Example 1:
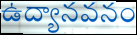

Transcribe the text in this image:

ఉద్యానవనం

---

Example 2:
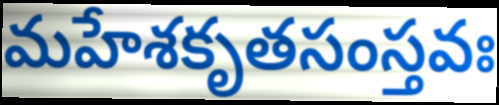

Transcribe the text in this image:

మహేశకృతసంస్తవః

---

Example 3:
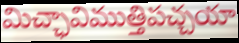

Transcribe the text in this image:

మిచ్ఛావిముత్తిపచ్చయా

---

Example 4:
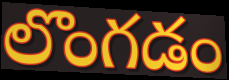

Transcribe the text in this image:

లొంగడం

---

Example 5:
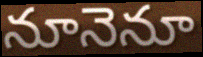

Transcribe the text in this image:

నూనెనూ